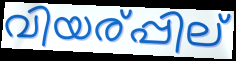
വിയര്പ്പില്